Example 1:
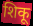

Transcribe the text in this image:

शिकू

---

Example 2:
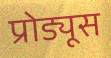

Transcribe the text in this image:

प्रोड्यूस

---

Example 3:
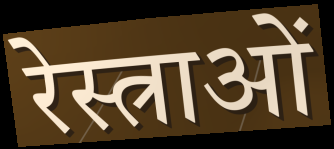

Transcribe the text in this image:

रेस्त्राओं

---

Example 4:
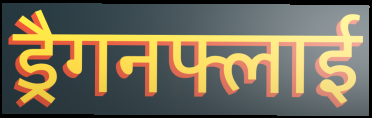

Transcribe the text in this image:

ड्रैगनफ्लाई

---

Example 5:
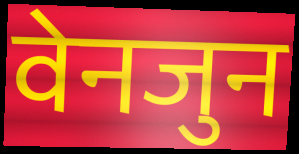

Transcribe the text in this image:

वेनजुन